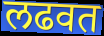
लढवत